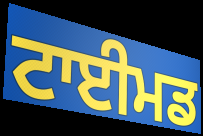
ਟਾਈਮਡ